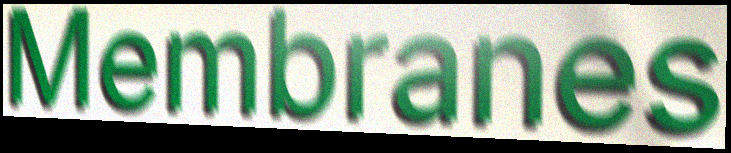
Membranes